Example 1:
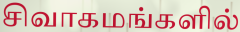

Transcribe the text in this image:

சிவாகமங்களில்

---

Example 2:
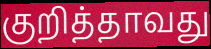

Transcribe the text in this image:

குறித்தாவது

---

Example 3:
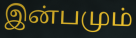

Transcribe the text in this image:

இன்பமும்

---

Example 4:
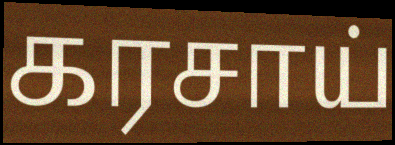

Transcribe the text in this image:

கரசாய்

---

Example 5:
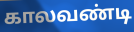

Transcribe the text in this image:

காலவண்டி